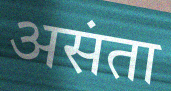
असंता